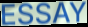
ESSAY